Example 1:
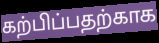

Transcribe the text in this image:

கற்பிப்பதற்காக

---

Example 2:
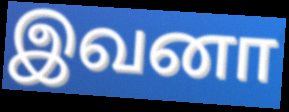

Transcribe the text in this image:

இவனா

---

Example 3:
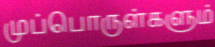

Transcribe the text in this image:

முப்பொருள்களும்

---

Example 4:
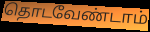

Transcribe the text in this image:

தொடவேண்டாம்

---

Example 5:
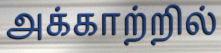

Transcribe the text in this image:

அக்காற்றில்